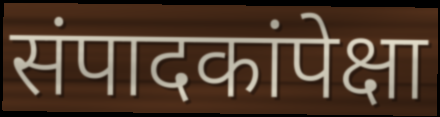
संपादकांपेक्षा